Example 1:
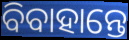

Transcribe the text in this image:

ବିବାହାନ୍ତେ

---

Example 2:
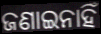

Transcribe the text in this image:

ଜଣାଇନାହିଁ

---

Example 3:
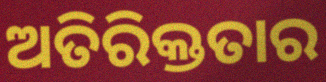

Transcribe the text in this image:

ଅତିରିକ୍ତତାର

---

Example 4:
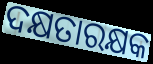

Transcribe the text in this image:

ଦକ୍ଷତାରକ୍ଷକ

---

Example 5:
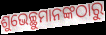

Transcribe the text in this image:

ଶୁଭେଚ୍ଛୁମାନଙ୍କଠାରୁ